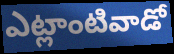
ఎట్లాంటివాడో